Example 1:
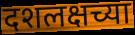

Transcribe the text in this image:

दशलक्षच्या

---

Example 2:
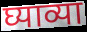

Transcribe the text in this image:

घ्याव्या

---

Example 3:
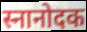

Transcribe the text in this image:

स्नानोदक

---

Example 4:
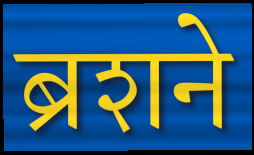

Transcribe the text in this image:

ब्रशने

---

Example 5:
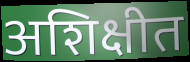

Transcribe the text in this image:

अशिक्षीत